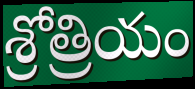
శ్రోత్రియం